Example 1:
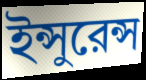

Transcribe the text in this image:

ইন্সুরেন্স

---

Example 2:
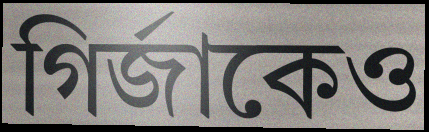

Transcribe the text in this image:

গির্জাকেও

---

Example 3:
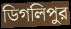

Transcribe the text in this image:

ডিগলিপুর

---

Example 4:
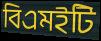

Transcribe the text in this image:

বিএমইটি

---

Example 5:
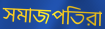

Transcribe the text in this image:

সমাজপতিরা